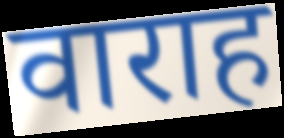
वाराह